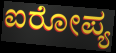
ಐರೋಪ್ಯ